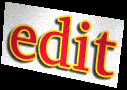
edit